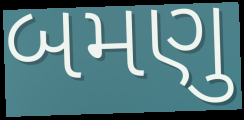
બમણુ